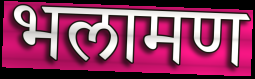
भलामण